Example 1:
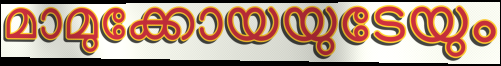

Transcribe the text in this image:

മാമുക്കോയയുടേയും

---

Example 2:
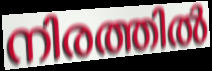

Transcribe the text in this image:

നിരത്തിൽ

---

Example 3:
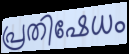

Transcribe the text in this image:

പ്രതിഷേധം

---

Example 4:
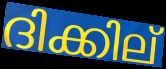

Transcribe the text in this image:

ദിക്കില്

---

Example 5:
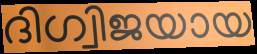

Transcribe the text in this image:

ദിഗ്വിജയായ